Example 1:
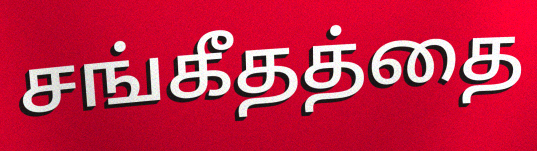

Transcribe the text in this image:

சங்கீதத்தை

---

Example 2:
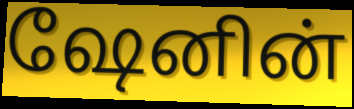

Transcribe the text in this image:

ஷேனின்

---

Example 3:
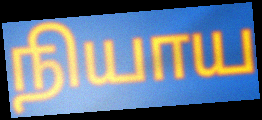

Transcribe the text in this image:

நியாய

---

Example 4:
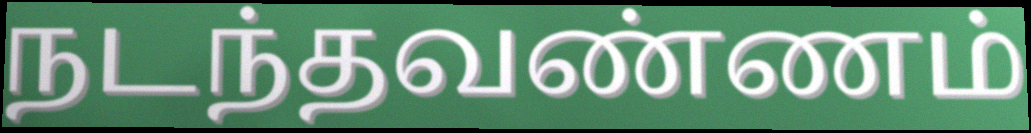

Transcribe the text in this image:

நடந்தவண்ணம்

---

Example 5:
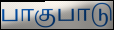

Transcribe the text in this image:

பாகுபாடு